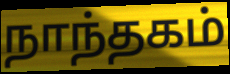
நாந்தகம்